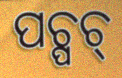
ପଚ୍ପଚ୍